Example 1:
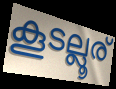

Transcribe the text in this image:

കൂടല്ലൂര്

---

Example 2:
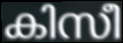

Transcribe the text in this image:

കിസീ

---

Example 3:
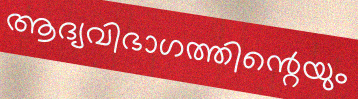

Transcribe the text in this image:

ആദ്യവിഭാഗത്തിന്റെയും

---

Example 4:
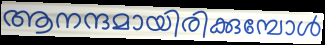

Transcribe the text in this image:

ആനന്ദമായിരിക്കുമ്പോൾ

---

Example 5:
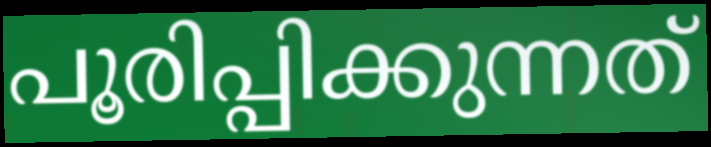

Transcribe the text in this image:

പൂരിപ്പിക്കുന്നത്